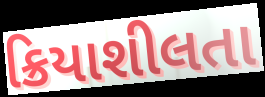
ક્રિયાશીલતા